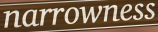
narrowness